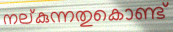
നല്കുന്നതുകൊണ്ട്